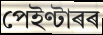
পেইণ্টাৰৰ